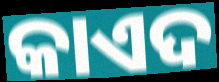
କାଏଦ